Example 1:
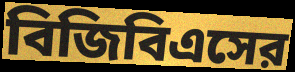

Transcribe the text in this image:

বিজিবিএসের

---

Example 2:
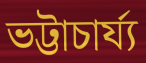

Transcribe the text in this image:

ভট্টাচার্য্য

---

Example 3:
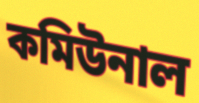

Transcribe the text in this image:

কমিউনাল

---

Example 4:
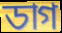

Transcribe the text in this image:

ডাগ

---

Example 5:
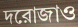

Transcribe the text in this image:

দরোজাও